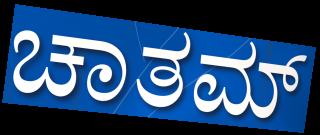
ಚಾತಮ್